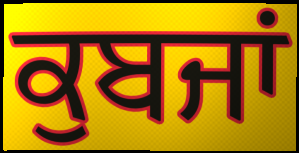
ਕੁਬਜਾਂ